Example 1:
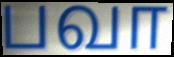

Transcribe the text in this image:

பவா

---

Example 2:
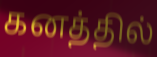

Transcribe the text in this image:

கனத்தில்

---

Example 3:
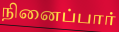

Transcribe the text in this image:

நினைப்பார்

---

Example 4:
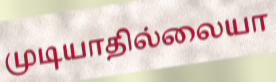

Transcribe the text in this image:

முடியாதில்லையா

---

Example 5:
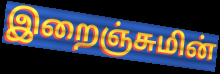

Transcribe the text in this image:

இறைஞ்சுமின்